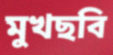
মুখছবি